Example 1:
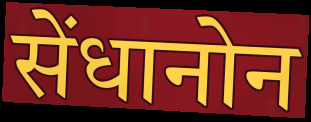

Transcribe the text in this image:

सेंधानोन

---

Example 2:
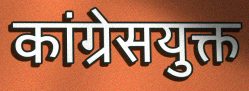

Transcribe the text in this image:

कांग्रेसयुक्त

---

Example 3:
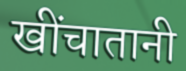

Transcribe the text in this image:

खींचातानी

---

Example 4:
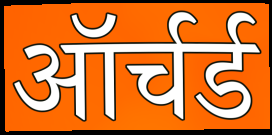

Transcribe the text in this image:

ऑर्चर्ड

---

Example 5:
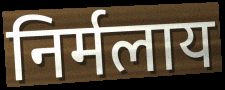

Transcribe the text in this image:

निर्मलाय